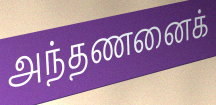
அந்தணனைக்